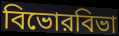
বিভোরবিভা